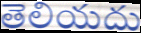
తెలియదు